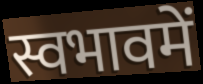
स्वभावमें